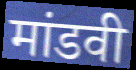
मांडवी